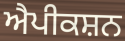
ਐਪੀਕਸ਼ਨ